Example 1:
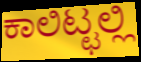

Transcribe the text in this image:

ಕಾಲಿಟ್ಟಲ್ಲಿ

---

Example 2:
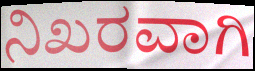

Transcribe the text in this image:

ನಿಖರವಾಗಿ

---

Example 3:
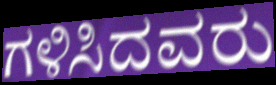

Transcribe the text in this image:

ಗಳಿಸಿದವರು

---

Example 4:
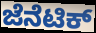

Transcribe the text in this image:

ಜೆನೆಟಿಕ್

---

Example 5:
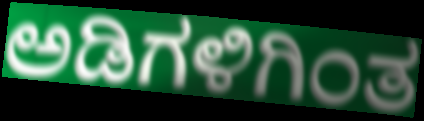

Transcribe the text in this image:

ಅಡಿಗಳಿಗಿಂತ